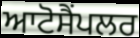
ਆਟੋਸੈਂਪਲਰ